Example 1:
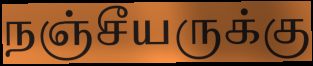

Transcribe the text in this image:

நஞ்சீயருக்கு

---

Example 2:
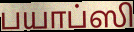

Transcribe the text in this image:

பயாப்ஸி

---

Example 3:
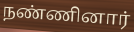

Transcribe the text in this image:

நண்ணினார்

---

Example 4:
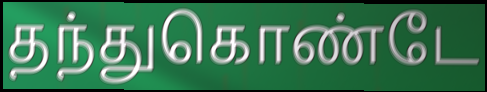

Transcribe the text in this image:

தந்துகொண்டே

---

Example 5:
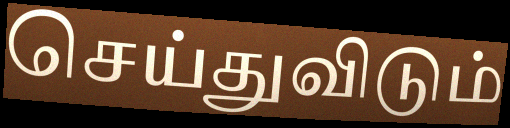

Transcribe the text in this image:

செய்துவிடும்